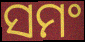
ସମଂ